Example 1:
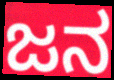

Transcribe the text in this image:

ಜನ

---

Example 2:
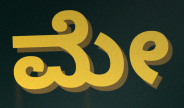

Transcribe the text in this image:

ಮೇ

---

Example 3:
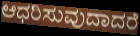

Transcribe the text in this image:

ಆಧರಿಸುವುದಾದರೆ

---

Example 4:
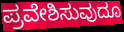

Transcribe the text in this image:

ಪ್ರವೇಶಿಸುವುದೂ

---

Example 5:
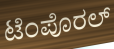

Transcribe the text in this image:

ಟೆಂಪೊರಲ್